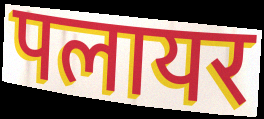
पलायर